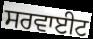
ਸਰਵਾਈਟ